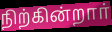
நிற்கின்றார்